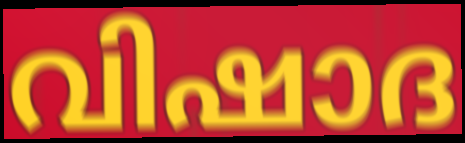
വിഷാദ